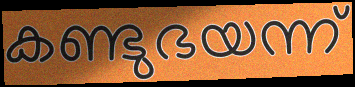
കണ്ടുഭയന്ന്